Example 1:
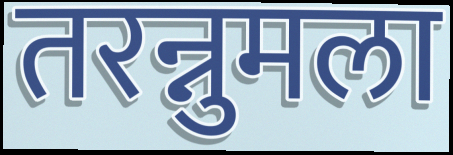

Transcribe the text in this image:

तरन्नुमला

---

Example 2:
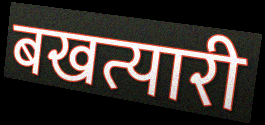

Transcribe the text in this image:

बखत्यारी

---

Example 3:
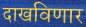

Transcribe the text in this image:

दाखविणार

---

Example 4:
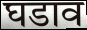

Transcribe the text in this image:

घडाव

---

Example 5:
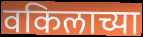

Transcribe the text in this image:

वकिलाच्या